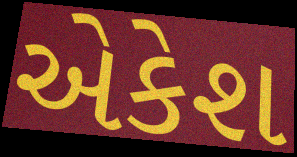
એકેશ